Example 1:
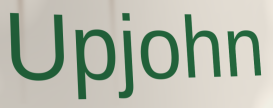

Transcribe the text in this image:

Upjohn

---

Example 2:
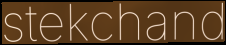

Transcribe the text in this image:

stekchand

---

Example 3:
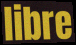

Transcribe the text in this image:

libre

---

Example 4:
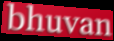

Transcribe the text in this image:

bhuvan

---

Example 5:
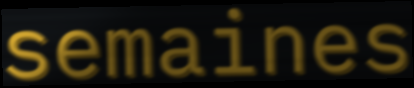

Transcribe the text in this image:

semaines